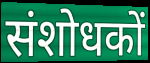
संशोधकों